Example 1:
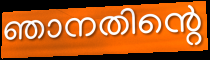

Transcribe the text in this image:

ഞാനതിന്റെ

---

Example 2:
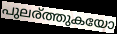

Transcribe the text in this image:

പുലര്ത്തുകയോ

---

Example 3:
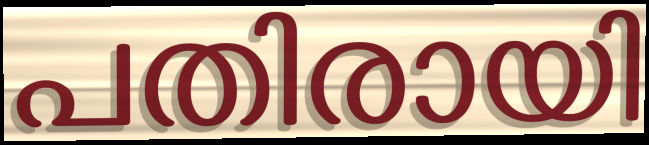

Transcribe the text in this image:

പതിരായി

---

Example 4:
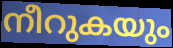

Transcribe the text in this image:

നീറുകയും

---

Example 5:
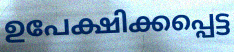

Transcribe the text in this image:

ഉപേക്ഷിക്കപ്പെട്ട